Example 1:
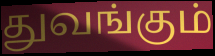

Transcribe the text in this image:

துவங்கும்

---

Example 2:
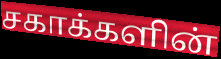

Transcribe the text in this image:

சகாக்களின்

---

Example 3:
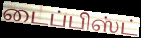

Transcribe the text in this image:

டைப்பிஸ்ட்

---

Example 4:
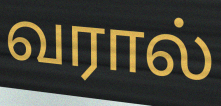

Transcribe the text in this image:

வரால்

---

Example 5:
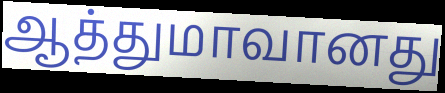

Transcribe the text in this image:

ஆத்துமாவானது